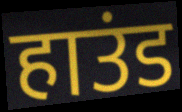
हाउंड